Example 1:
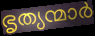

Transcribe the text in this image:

ഭൃത്യന്മാർ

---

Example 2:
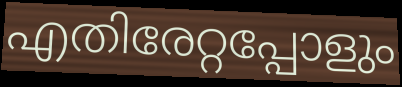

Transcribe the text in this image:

എതിരേറ്റപ്പോളും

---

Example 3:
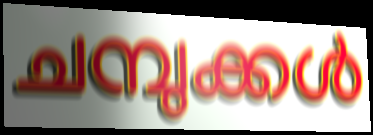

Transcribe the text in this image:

ചമ്പുക്കൾ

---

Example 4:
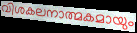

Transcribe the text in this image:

വിശകലനാത്മകമായും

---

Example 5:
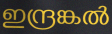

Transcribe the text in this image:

ഇന്ദ്രങ്കൽ